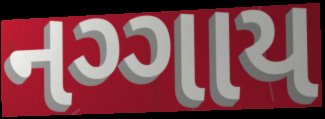
નગ્ગાય